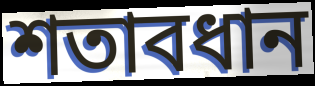
শতাবধান